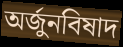
অর্জুনবিষাদ